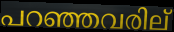
പറഞ്ഞവരില്